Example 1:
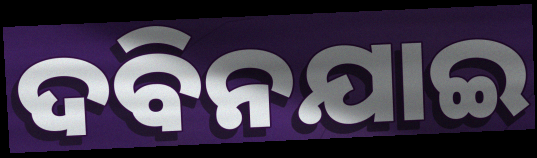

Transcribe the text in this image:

ଦବିନଯାଇ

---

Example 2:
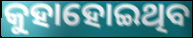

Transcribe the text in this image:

କୁହାହୋଇଥିବ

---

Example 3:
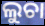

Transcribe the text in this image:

ଲୁଚା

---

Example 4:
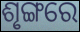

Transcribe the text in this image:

ଶୃଙ୍ଗରେ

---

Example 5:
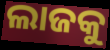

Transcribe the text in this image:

ଲାଜକୁ